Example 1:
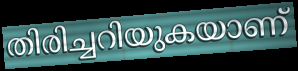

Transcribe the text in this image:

തിരിച്ചറിയുകയാണ്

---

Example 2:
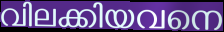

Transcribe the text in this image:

വിലക്കിയവനെ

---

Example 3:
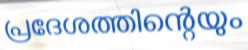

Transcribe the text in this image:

പ്രദേശത്തിന്റെയും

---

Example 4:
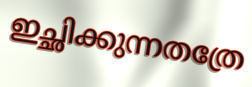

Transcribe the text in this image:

ഇച്ഛിക്കുന്നതത്രേ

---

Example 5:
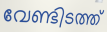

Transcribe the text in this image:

വേണ്ടിടത്ത്